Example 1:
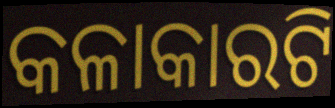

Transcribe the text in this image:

କଳାକାରଟି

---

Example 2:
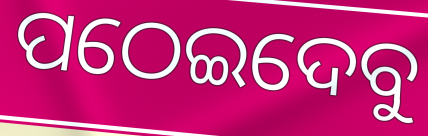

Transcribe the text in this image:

ପଠେଇଦେବୁ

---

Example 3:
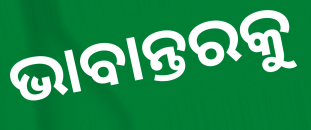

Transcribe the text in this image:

ଭାବାନ୍ତରକୁ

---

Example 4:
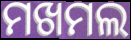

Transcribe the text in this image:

ମଖମଲ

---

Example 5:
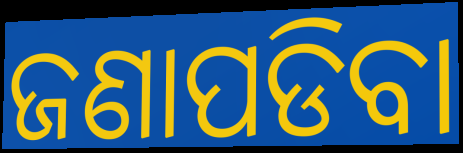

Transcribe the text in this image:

ଜଣାପଡିବା